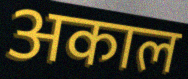
अकाल